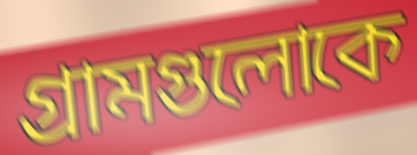
গ্রামগুলোকে